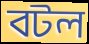
বটল